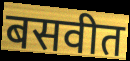
बसवीत